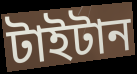
টাইটান